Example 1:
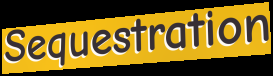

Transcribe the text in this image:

Sequestration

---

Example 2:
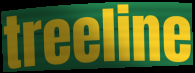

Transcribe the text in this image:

treeline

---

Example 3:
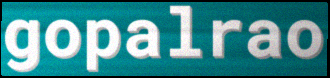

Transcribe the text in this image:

gopalrao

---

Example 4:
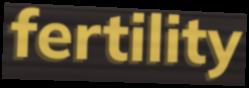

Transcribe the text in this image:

fertility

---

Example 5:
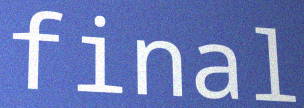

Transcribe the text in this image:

final